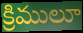
క్రిములూ